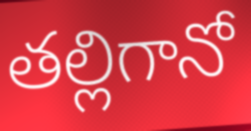
తల్లిగానో